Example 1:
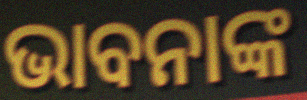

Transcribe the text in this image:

ଭାବନାଙ୍କ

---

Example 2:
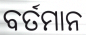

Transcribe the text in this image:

ବର୍ତମାନ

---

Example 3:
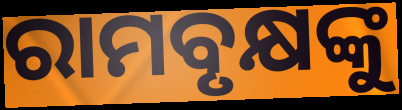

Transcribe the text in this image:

ରାମବୃକ୍ଷଙ୍କୁ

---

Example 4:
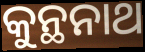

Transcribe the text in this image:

କୁନ୍ଥନାଥ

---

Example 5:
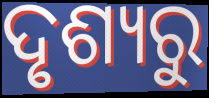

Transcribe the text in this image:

ଦୃଶ୍ୟରୁ